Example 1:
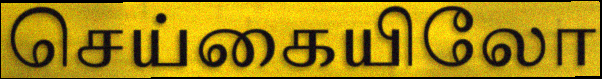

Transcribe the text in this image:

செய்கையிலோ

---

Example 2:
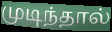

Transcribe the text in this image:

முடிந்தால்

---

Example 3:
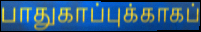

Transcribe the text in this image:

பாதுகாப்புக்காகப்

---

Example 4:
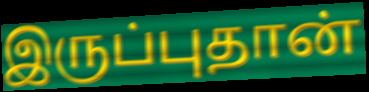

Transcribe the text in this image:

இருப்புதான்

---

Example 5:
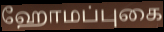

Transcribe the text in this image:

ஹோமப்புகை